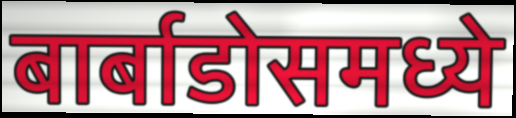
बार्बाडोसमध्ये